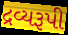
દ્રવ્યરૂપી